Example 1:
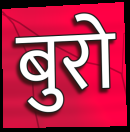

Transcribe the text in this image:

बुरो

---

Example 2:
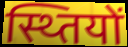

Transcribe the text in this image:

स्थ्तियों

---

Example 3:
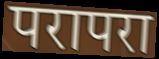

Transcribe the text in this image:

परापरा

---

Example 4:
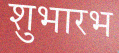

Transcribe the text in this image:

शुभारभ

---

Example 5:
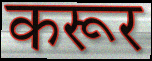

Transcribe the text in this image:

करूर